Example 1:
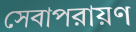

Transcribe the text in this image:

সেবাপরায়ণ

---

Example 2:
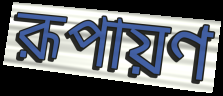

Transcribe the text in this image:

রূপায়ণ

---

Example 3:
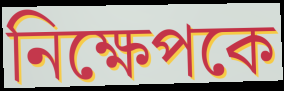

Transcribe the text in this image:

নিক্ষেপকে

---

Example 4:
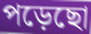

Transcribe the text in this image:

পড়েছো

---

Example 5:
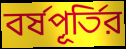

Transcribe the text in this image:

বর্ষপূর্তির